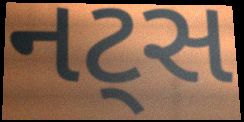
નટ્સ